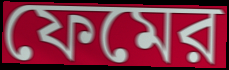
ফেমের